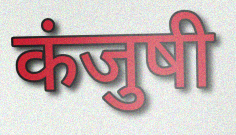
कंजुषी